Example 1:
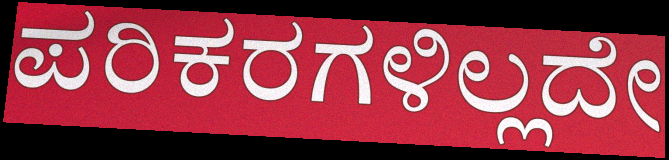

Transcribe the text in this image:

ಪರಿಕರಗಳಿಲ್ಲದೇ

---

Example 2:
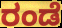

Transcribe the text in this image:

ರಂಡೆ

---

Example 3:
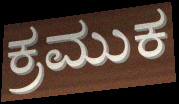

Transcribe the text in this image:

ಕ್ರಮುಕ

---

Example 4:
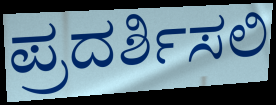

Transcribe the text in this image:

ಪ್ರದರ್ಶಿಸಲಿ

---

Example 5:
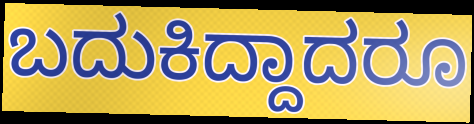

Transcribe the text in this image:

ಬದುಕಿದ್ದಾದರೂ